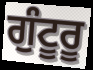
ਗੁੰਟੂਰੂ